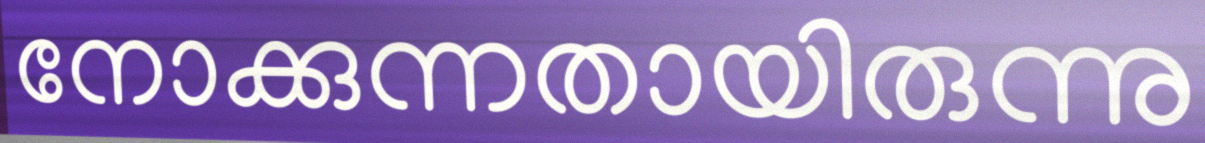
നോക്കുന്നതായിരുന്നു